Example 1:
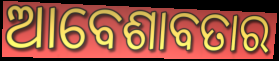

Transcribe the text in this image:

ଆବେଶାବତାର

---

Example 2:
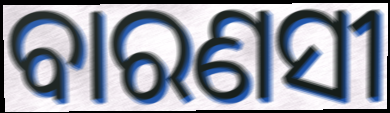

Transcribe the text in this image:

ବାରଣସୀ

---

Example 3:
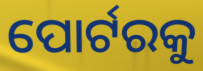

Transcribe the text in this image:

ପୋର୍ଟରକୁ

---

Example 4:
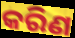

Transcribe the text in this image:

କରିଣ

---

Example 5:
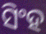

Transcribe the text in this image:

ସିଂହ